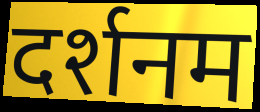
दर्शनम